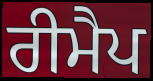
ਰੀਮੈਪ